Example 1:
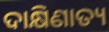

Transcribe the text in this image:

ଦାକ୍ଷିଣାତ୍ୟ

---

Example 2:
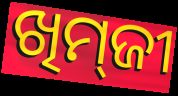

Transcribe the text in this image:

ଖିମ୍‌ଜୀ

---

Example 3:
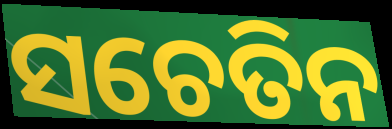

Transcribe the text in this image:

ସଚେତିନ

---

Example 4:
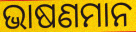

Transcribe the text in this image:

ଭାଷଣମାନ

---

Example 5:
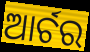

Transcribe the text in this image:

ଆର୍ଚର